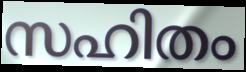
സഹിതം